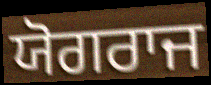
ਯੋਗਰਾਜ